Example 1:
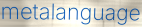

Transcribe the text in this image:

metalanguage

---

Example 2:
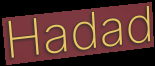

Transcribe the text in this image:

Hadad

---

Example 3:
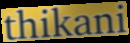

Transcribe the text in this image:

thikani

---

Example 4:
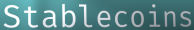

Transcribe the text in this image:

Stablecoins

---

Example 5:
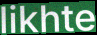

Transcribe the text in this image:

likhte